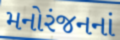
મનોરંજનનાં